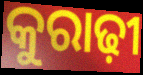
କୁରାଢ଼ୀ